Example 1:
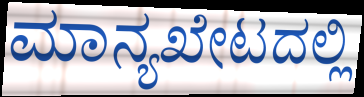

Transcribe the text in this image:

ಮಾನ್ಯಖೇಟದಲ್ಲಿ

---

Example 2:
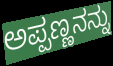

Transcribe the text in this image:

ಅಪ್ಪಣ್ಣನನ್ನು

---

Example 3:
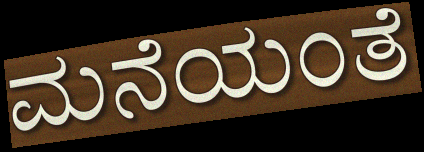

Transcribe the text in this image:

ಮನೆಯಂತೆ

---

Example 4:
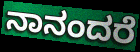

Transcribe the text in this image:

ನಾನಂದರೆ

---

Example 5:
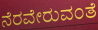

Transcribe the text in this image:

ನೆರವೇರುವಂತೆ